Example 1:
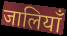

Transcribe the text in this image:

जालियाँ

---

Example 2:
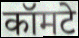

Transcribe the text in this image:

कॉमटे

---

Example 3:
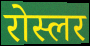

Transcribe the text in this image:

रोस्लर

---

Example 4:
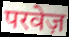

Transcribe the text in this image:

परवेज़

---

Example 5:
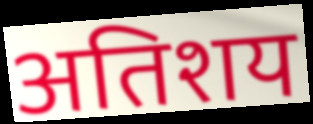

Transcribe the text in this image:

अतिशय